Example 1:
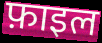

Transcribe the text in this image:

फ़ाइल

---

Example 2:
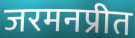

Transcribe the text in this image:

जरमनप्रीत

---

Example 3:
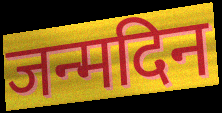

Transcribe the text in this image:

जन्‍मदिन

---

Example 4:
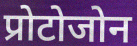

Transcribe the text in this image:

प्रोटोजोन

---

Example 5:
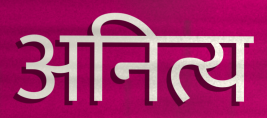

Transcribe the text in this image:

अनित्य